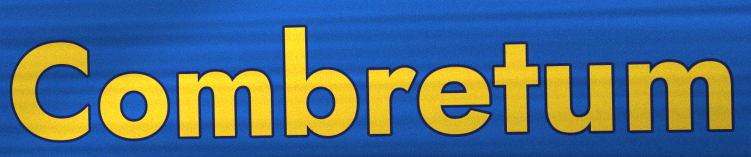
Combretum